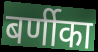
बर्णीका